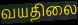
வயதிலை